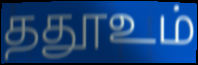
ததூஉம்